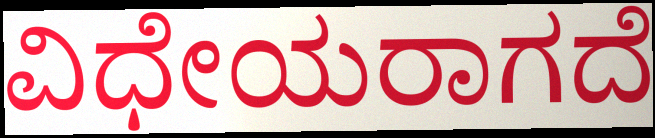
ವಿಧೇಯರಾಗದೆ